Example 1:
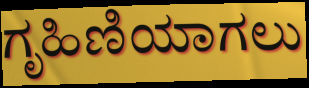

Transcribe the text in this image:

ಗೃಹಿಣಿಯಾಗಲು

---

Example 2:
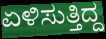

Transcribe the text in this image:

ಏಳಿಸುತ್ತಿದ್ದ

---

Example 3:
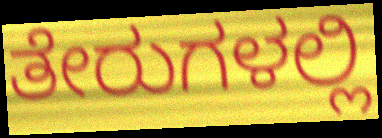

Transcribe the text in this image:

ತೇರುಗಳಲ್ಲಿ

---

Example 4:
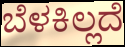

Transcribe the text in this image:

ಬೆಳಕಿಲ್ಲದೆ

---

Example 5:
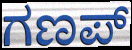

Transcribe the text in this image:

ಗಣಪ್